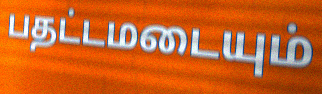
பதட்டமடையும்